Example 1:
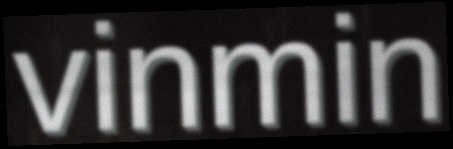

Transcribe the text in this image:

vinmin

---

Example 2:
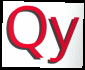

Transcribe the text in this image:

Qy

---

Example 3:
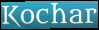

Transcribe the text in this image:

Kochar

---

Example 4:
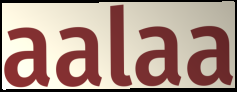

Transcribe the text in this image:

aalaa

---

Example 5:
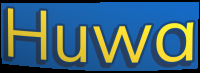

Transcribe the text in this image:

Huwa